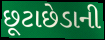
છૂટાછેડાની